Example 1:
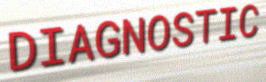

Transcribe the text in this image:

DIAGNOSTIC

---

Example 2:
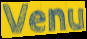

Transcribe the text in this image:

Venu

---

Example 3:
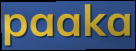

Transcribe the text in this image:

paaka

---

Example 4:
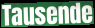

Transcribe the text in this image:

Tausende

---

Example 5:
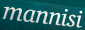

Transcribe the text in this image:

mannisi